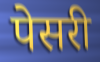
पेसरी